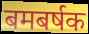
बमबर्षक